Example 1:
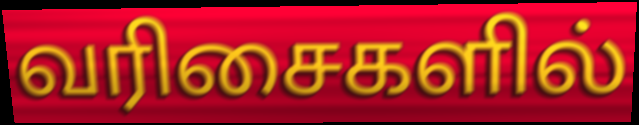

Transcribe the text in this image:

வரிசைகளில்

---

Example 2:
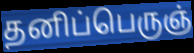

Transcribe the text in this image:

தனிப்பெருஞ்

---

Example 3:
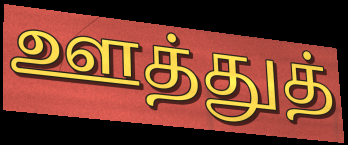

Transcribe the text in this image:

ஊத்துத்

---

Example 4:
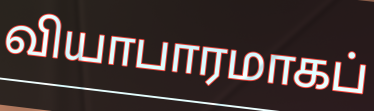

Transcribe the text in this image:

வியாபாரமாகப்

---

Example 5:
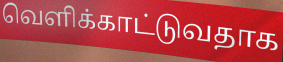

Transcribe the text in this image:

வெளிக்காட்டுவதாக